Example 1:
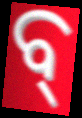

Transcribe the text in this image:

ବ୍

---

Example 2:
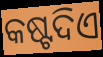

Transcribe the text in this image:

କଷ୍ଟଦିଏ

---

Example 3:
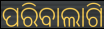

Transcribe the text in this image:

ପରିବାଲାଗି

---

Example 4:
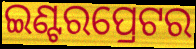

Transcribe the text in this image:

ଇଣ୍ଟରପ୍ରେଟର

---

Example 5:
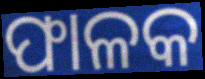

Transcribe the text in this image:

ଫାଳକ